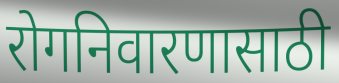
रोगनिवारणासाठी